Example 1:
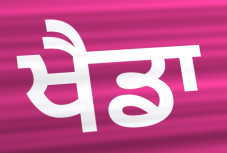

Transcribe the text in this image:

ਖੈਡਾ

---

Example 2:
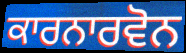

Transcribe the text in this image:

ਕਾਰਨਾਰਵੋਨ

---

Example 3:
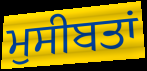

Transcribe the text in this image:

ਮੁਸੀਬਤਾਂ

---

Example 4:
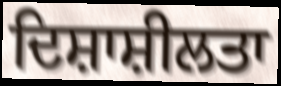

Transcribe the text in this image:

ਦਿਸ਼ਾਸ਼ੀਲਤਾ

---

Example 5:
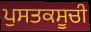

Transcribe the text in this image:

ਪੁਸਤਕਸੂਚੀ